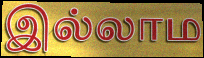
இல்லாம